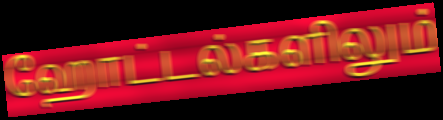
ஹோட்டல்களிலும்